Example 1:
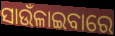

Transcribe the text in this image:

ସାଉଁଳାଇବାରେ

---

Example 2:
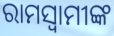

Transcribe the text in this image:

ରାମସ୍ୱାମୀଙ୍କ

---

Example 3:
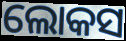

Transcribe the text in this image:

ଲୋକସ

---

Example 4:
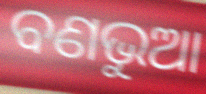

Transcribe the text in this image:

ବଣଭୁଆ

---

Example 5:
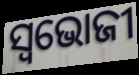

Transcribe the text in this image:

ସ୍ଵଭୋଜୀ